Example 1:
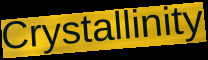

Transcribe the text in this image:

Crystallinity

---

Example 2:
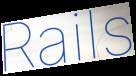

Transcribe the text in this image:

Rails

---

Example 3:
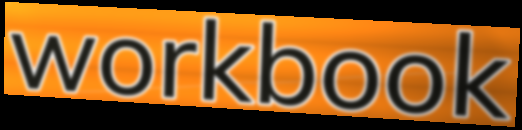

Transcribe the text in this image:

workbook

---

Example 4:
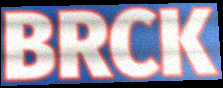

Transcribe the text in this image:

BRCK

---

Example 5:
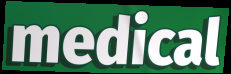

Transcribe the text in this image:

medical